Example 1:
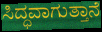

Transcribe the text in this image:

ಸಿದ್ಧವಾಗುತ್ತಾನೆ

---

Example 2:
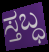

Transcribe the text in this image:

ಸ್ತಬ್ಧ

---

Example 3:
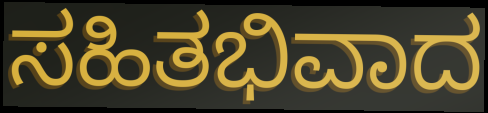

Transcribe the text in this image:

ಸಹಿತಭಿವಾದ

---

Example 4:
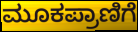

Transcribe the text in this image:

ಮೂಕಪ್ರಾಣಿಗೆ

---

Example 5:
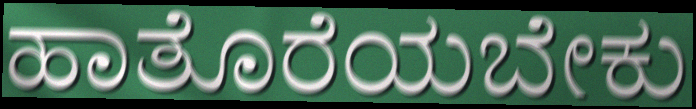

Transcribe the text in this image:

ಹಾತೊರೆಯಬೇಕು